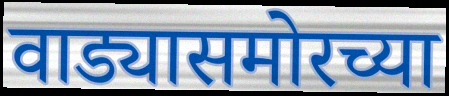
वाड्यासमोरच्या